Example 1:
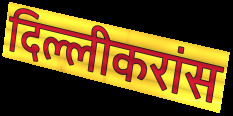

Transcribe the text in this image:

दिल्लीकरांस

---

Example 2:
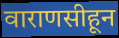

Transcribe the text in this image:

वाराणसीहून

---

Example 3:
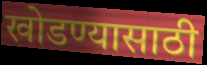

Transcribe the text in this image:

खोडण्यासाठी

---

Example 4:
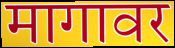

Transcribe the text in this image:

मागावर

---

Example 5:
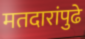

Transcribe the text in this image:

मतदारांपुढे